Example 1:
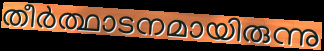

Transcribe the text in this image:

തീർത്ഥാടനമായിരുന്നു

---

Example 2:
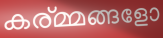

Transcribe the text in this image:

കര്മ്മങ്ങളോ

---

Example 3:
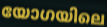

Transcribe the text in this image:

യോഗയിലെ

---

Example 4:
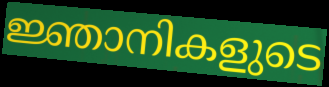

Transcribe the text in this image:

ജ്ഞാനികളുടെ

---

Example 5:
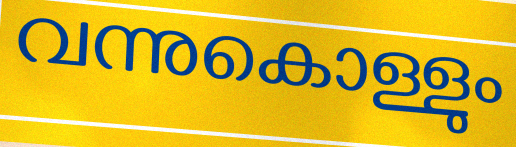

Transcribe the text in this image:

വന്നുകൊള്ളും